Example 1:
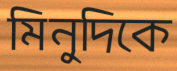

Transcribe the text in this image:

মিনুদিকে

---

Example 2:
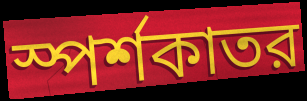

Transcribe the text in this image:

স্পর্শকাতর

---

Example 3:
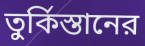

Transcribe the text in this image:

তুর্কিস্তানের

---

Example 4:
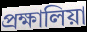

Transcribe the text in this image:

প্রক্ষালিয়া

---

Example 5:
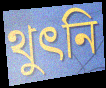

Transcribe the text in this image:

থুৎনি